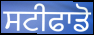
ਸਟੀਫਾਡੋ